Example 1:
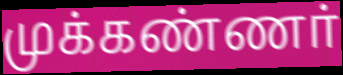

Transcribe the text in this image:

முக்கண்ணர்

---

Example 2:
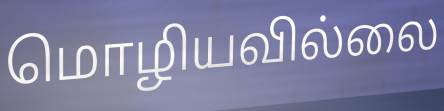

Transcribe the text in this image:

மொழியவில்லை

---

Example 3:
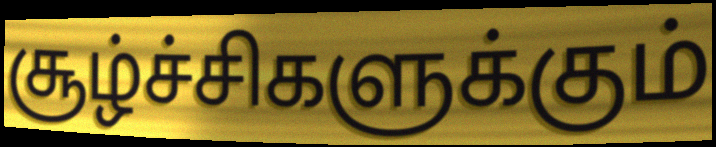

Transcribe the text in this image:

சூழ்ச்சிகளுக்கும்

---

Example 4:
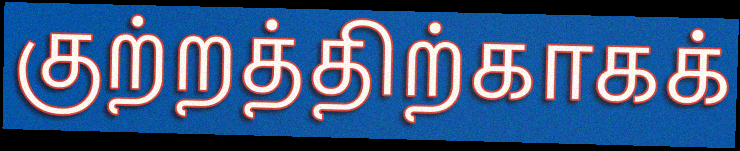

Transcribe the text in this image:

குற்றத்திற்காகக்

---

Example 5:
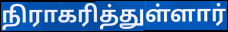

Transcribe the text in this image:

நிராகரித்துள்ளார்